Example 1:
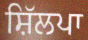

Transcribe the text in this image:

ਸ਼ਿੱਲਪਾ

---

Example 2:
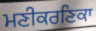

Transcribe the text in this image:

ਮਣੀਕਰਣਿਕਾ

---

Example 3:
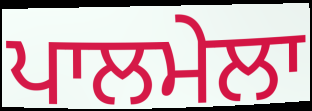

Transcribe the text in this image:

ਪਾਲਮੇਲਾ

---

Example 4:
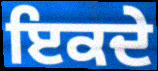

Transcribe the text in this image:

ਇਕਦੇ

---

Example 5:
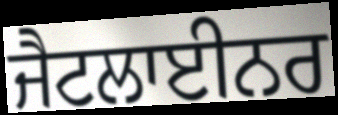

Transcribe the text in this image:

ਜੈਟਲਾਈਨਰ